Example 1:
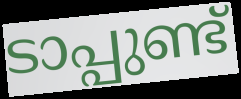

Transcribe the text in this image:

ടാപ്പുണ്ട്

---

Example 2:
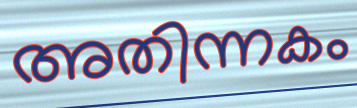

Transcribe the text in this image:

അതിന്നകം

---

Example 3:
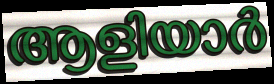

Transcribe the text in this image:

ആളിയാർ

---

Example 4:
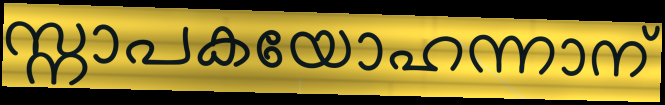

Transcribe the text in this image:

സ്നാപകയോഹന്നാന്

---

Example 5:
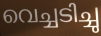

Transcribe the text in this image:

വെച്ചടിച്ചു